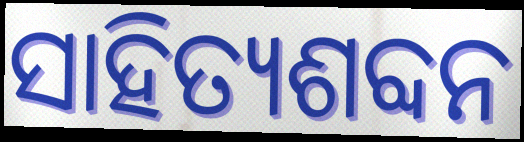
ସାହିତ୍ୟଶବ୍ଦନ